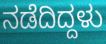
ನಡೆದಿದ್ದಳು